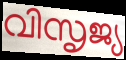
വിസൃജ്യ